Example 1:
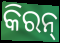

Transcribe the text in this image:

କିରନ୍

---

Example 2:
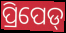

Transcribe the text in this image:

ପ୍ରିପେଡ୍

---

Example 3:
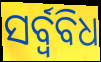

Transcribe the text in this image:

ସର୍ବ୍ବବିଧ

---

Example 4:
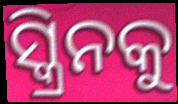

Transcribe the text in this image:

ସ୍କ୍ରିନକୁ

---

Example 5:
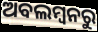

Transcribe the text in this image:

ଅବଲମ୍ବନରୁ